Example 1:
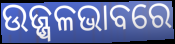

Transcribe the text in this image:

ଉଜ୍ଜ୍ୱଳଭାବରେ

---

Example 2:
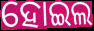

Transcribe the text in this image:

ହୋଇଲ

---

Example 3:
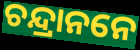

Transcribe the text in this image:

ଚନ୍ଦ୍ରାନନେ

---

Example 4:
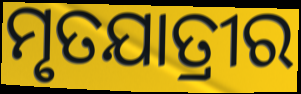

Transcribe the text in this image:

ମୃତଯାତ୍ରୀର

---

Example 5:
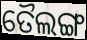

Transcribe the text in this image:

ତୈଲଙ୍ଗ